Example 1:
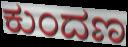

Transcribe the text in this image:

ಕುಂದಣ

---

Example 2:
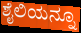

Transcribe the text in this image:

ಶೈಲಿಯನ್ನೂ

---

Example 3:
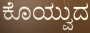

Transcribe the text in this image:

ಕೊಯ್ವುದ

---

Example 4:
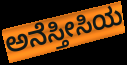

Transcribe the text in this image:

ಅನೆಸ್ತೀಸಿಯ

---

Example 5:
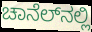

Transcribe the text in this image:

ಚಾನೆಲ್‌ನಲ್ಲಿ